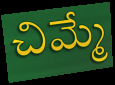
చిమ్మే